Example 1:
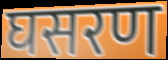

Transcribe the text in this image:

घसरण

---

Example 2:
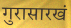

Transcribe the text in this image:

गुरासारखं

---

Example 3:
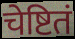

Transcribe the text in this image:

चेष्टितं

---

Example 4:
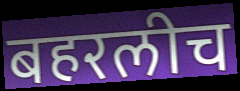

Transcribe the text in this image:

बहरलीच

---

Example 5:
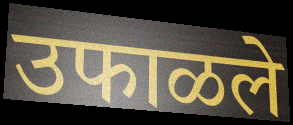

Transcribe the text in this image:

उफाळले